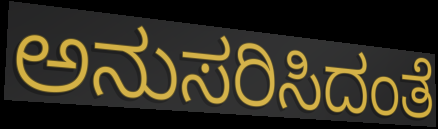
ಅನುಸರಿಸಿದಂತೆ